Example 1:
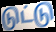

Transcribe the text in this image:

டுட்டு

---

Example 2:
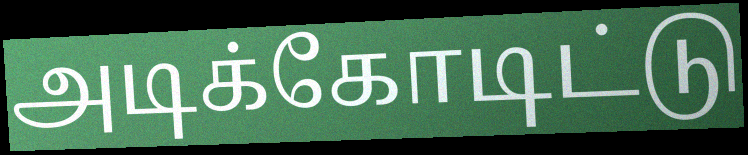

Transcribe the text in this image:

அடிக்கோடிட்டு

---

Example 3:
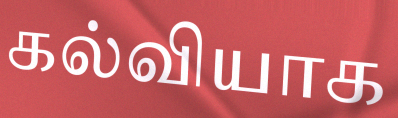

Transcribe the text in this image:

கல்வியாக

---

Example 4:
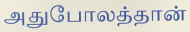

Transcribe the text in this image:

அதுபோலத்தான்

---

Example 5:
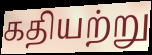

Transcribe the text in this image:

கதியற்று